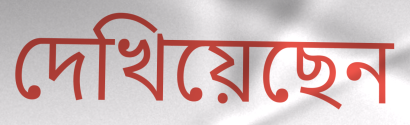
দেখিয়েছেন